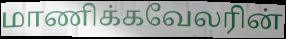
மாணிக்கவேலரின்